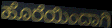
ಹೊರೆಯಿಂದಾಗಿ